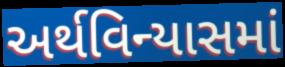
અર્થવિન્યાસમાં